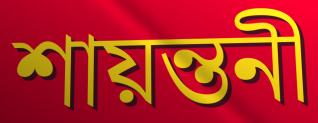
শায়ন্তনী